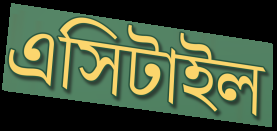
এসিটাইল